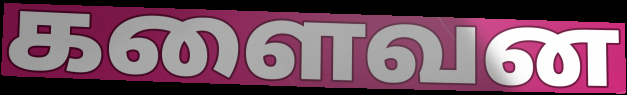
களைவன